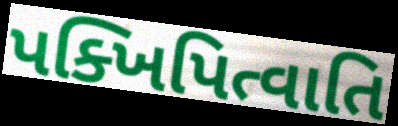
પક્ખિપિત્વાતિ